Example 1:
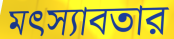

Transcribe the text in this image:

মৎস্যাবতার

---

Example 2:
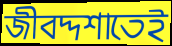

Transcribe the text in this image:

জীবদ্দশাতেই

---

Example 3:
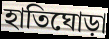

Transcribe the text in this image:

হাতিঘোড়া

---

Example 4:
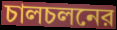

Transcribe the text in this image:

চালচলনের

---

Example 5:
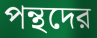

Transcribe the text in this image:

পন্থদের